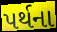
પર્થના